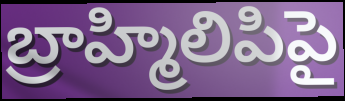
బ్రాహ్మిలిపిపై